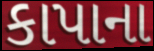
કાપાના